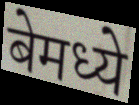
बेमध्ये